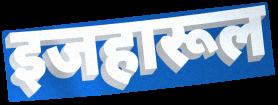
इजहारूल